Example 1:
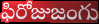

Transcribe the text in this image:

ఫిరోజుజంగు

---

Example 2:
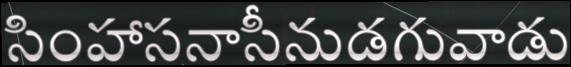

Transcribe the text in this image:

సింహాసనాసీనుడగువాడు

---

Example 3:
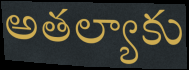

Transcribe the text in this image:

అతల్యాకు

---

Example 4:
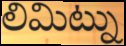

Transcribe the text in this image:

లిమిట్ను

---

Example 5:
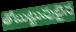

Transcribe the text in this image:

తోబుట్టువులైన